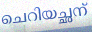
ചെറിയച്ഛന്